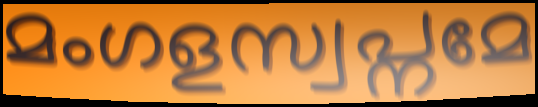
മംഗളസ്വപ്നമേ